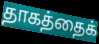
தாகத்தைக்